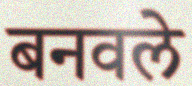
बनवले